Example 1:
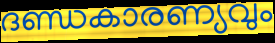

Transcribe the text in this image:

ദണ്ഡകാരണ്യവും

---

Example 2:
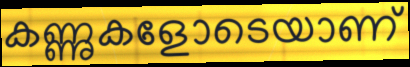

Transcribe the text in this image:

കണ്ണുകളോടെയാണ്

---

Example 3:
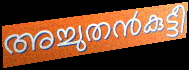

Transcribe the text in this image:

അച്ചുതൻകുട്ടീ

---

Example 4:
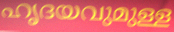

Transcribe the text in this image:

ഹൃദയവുമുള്ള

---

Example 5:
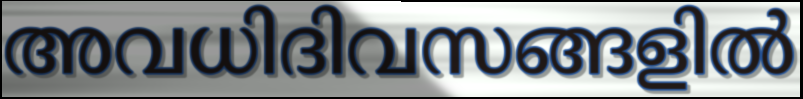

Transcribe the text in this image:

അവധിദിവസങ്ങളിൽ